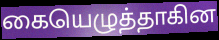
கையெழுத்தாகின